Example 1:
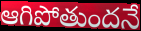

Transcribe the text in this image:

ఆగిపోతుందనే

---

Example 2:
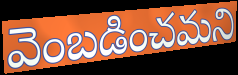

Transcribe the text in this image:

వెంబడించమని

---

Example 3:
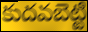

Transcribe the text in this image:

కుదవబెట్టి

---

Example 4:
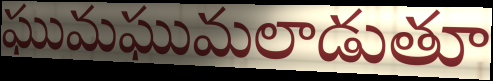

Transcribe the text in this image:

ఘుమఘుమలాడుతూ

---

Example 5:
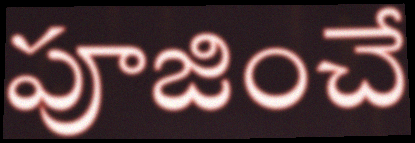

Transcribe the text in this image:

పూజించే